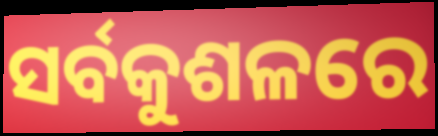
ସର୍ବକୁଶଳରେ